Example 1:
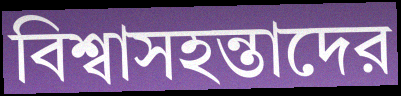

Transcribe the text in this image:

বিশ্বাসহন্তাদের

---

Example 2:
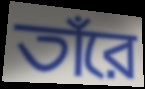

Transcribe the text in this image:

তাঁরে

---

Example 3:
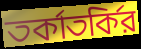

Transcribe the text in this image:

তর্কাতর্কির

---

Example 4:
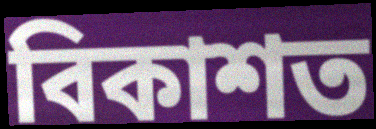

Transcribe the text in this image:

বিকাশত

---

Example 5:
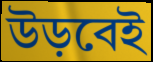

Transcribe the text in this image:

উড়বেই